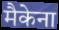
मैकेना